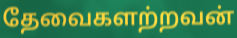
தேவைகளற்றவன்